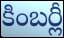
కింబర్లీ